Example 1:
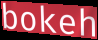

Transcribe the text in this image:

bokeh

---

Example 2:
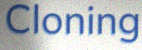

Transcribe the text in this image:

Cloning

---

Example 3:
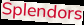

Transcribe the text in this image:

Splendors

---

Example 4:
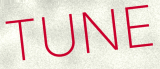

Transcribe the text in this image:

TUNE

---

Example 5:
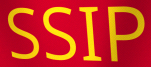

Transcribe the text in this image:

SSIP